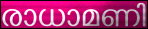
രാധാമണി